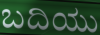
ಬದಿಯು